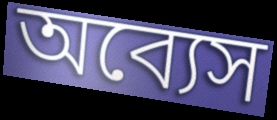
অব্যেস